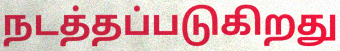
நடத்தப்படுகிறது